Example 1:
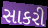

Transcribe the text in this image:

સાકરી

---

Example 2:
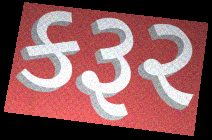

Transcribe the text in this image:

કરૂર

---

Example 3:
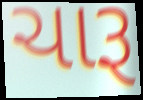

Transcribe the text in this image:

ચારૂ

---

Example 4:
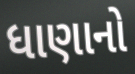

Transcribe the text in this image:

ધાણાનો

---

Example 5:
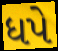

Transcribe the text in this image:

ધપે